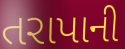
તરાપાની